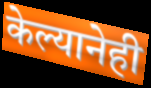
केल्यानेही